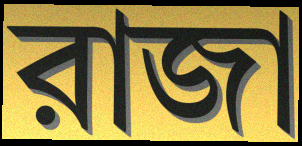
রাজা